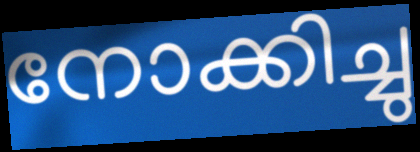
നോക്കിച്ചു